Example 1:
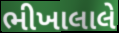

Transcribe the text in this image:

ભીખાલાલે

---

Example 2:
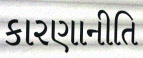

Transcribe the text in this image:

કારણાનીતિ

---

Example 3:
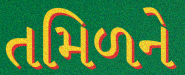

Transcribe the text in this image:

તમિળને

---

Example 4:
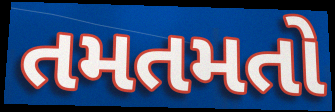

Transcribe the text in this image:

તમતમતો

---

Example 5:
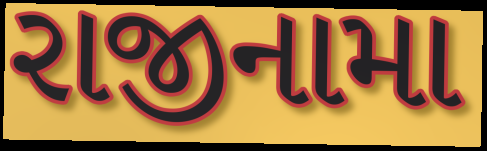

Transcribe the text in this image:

રાજીનામા